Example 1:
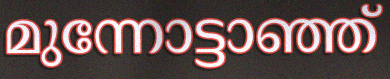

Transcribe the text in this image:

മുന്നോട്ടാഞ്ഞ്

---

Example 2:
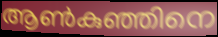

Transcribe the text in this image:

ആൺകുഞ്ഞിനെ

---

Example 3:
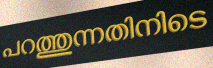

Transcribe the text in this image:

പറത്തുന്നതിനിടെ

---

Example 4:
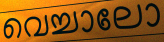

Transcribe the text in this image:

വെച്ചാലോ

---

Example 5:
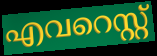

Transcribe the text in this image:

എവറെസ്റ്റ്